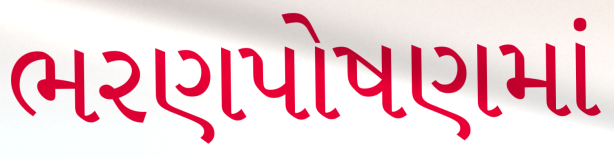
ભરણપોષણમાં